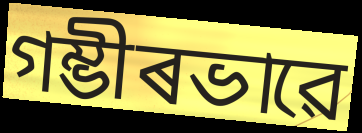
গম্ভীৰভাৱে